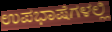
ಉಪಭಾಷೆಗಳಲ್ಲಿ